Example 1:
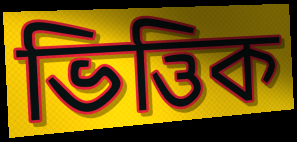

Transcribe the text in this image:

ভিত্তিক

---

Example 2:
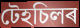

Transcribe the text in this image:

টেহচিলৰ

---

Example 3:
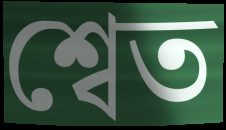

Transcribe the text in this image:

শ্বেত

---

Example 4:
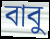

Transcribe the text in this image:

বাবু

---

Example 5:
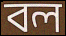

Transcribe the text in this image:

বল